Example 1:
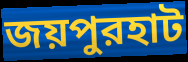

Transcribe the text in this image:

জয়পুরহাট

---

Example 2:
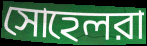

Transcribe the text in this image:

সোহেলরা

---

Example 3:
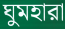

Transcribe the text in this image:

ঘুমহারা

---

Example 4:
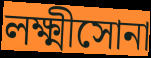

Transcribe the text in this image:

লক্ষ্মীসোনা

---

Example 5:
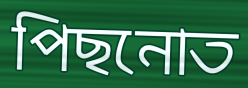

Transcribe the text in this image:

পিছনোত